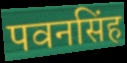
पवनसिंह